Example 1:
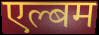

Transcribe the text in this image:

एल्बम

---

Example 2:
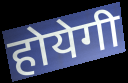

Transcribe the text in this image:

होयेगी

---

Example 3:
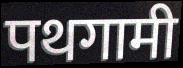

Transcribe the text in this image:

पथगामी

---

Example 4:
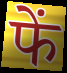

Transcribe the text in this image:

फें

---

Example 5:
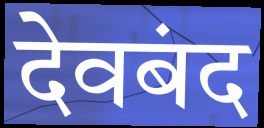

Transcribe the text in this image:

देवबंद